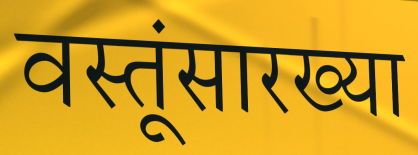
वस्तूंसारख्या